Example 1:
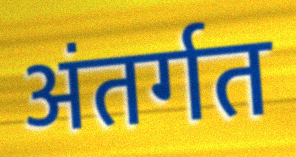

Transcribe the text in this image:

अंतर्गत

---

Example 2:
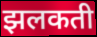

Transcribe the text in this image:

झलकती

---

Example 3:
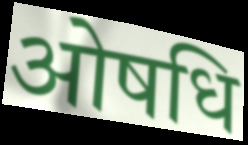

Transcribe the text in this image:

ओषधि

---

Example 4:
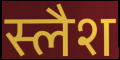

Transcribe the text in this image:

स्लैश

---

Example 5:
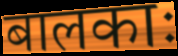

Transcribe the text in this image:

बालकाः